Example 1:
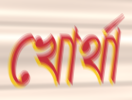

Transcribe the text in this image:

খোৰ্থা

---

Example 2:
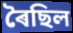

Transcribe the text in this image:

ৰৈছিল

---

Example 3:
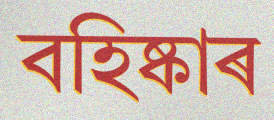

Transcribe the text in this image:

বহিষ্কাৰ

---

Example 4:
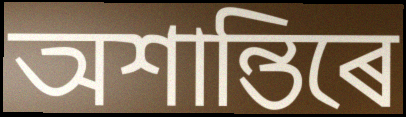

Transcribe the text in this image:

অশান্তিৰে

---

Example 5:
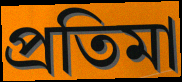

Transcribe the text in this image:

প্ৰতিমা